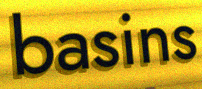
basins